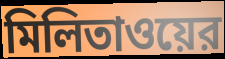
মিলিতাওয়ের